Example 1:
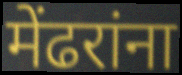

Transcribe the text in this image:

मेंढरांना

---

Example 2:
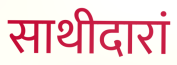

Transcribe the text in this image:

साथीदारां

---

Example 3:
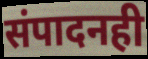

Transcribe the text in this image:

संपादनही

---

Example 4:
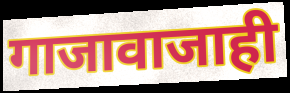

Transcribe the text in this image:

गाजावाजाही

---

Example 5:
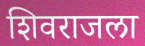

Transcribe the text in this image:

शिवराजला